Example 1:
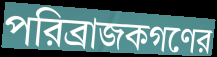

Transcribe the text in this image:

পরিব্রাজকগণের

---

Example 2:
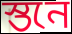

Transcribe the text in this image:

স্তনে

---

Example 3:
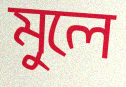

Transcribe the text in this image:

মুলে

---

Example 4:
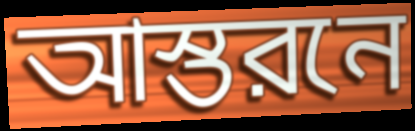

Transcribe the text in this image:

আস্তরনে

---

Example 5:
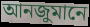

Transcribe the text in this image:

আনজুমানে